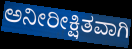
ಅನೀರೀಕ್ಷಿತವಾಗಿ